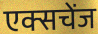
एक्सचेंज